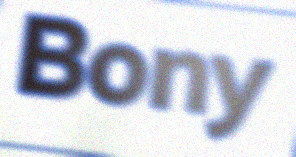
Bony